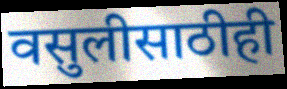
वसुलीसाठीही